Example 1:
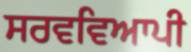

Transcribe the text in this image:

ਸਰਵਵਿਆਪੀ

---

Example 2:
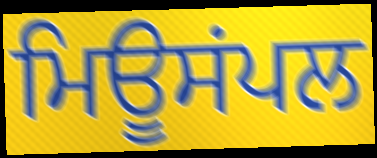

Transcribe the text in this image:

ਮਿਊਸਂਪਲ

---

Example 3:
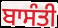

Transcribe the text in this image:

ਬਾਸੰਤੀ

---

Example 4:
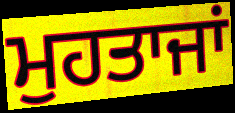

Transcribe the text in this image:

ਮੁਹਤਾਜਾਂ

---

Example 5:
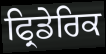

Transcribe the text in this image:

ਫ੍ਰਿਡੇਰਿਕ